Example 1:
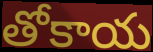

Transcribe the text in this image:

తోకాయ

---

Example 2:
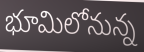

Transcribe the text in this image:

భూమిలోనున్న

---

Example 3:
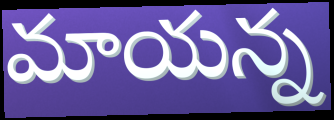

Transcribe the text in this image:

మాయన్న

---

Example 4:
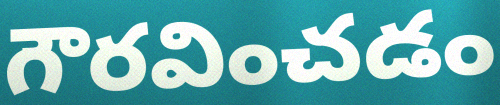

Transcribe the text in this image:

గౌరవించడం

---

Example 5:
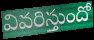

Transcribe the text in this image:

వివరిస్తుందో